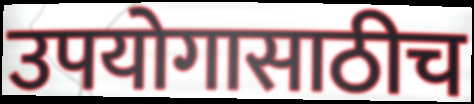
उपयोगासाठीच